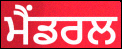
ਮੈਂਡਰਲ